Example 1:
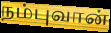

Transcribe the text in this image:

நம்புவான்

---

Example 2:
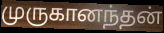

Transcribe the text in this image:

முருகானந்தன்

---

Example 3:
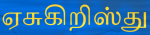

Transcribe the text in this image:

ஏசுகிறிஸ்து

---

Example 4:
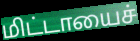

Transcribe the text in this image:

மிட்டாயைச்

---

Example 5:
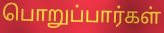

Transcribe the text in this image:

பொறுப்பார்கள்